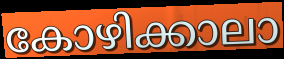
കോഴിക്കാലാ